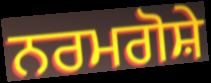
ਨਰਮਗੋਸ਼ੇ